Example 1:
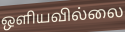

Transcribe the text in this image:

ஒளியவில்லை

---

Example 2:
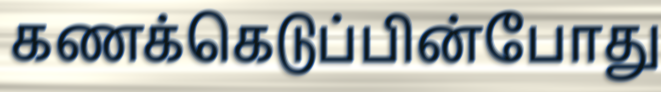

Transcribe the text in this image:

கணக்கெடுப்பின்போது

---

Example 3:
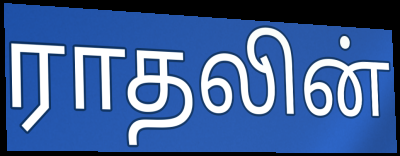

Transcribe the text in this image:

ராதலின்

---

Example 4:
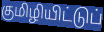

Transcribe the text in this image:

குமிழியிட்டுப்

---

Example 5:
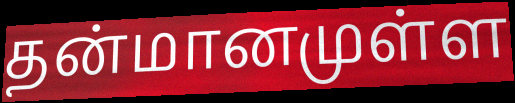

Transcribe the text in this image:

தன்மானமுள்ள